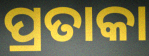
ପ୍ରତାକା